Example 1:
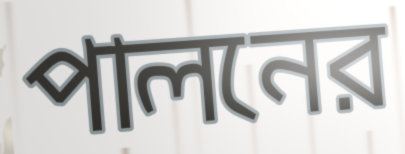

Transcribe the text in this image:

পালনের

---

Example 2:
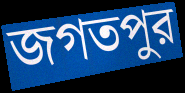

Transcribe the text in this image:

জগতপুর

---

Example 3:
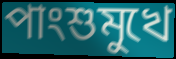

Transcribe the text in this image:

পাংশুমুখে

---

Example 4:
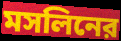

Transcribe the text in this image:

মসলিনের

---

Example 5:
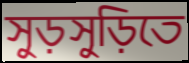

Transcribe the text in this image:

সুড়সুড়িতে